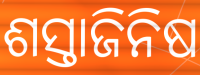
ଶସ୍ତାଜିନିଷ